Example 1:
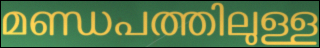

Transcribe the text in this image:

മണ്ഡപത്തിലുള്ള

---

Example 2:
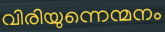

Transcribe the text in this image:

വിരിയുന്നെന്മനം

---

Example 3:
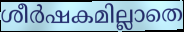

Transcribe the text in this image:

ശീർഷകമില്ലാതെ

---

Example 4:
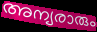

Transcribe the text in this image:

അന്യരാരും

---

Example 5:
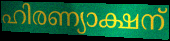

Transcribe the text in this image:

ഹിരണ്യാക്ഷന്